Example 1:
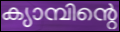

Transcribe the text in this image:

ക്യാമ്പിന്റെ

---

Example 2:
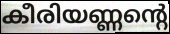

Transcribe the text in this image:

കീരിയണ്ണന്റെ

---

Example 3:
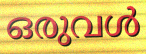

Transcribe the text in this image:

ഒരുവൾ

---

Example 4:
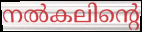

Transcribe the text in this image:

നൽകലിന്റെ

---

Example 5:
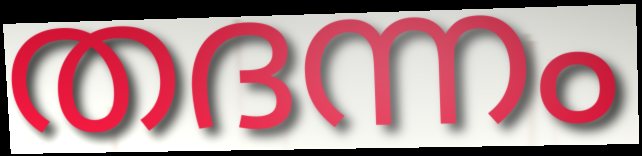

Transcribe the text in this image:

തദന്നം